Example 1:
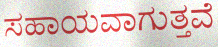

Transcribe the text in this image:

ಸಹಾಯವಾಗುತ್ತವೆ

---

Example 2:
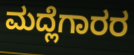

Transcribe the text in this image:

ಮದ್ಲೆಗಾರರ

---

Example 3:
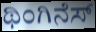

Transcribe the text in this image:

ಥಿಂಗಿನೆಸ್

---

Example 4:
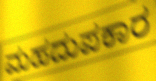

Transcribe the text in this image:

ಮಹದುಪಕಾರ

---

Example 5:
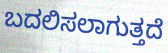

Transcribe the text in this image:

ಬದಲಿಸಲಾಗುತ್ತದೆ